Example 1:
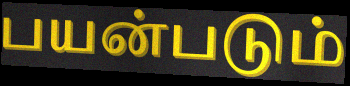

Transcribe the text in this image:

பயன்படும்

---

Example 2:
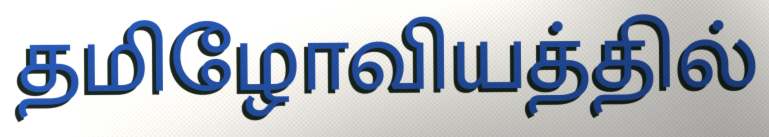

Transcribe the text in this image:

தமிழோவியத்தில்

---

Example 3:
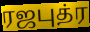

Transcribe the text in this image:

ரஜபுத்ர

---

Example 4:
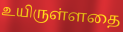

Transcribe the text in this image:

உயிருள்ளதை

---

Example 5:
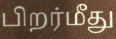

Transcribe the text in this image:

பிறர்மீது